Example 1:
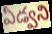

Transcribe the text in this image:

ఏడ్వని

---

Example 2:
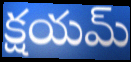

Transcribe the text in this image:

క్షయమ్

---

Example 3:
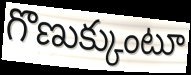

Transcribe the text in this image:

గొణుక్కుంటూ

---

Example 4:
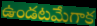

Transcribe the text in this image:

ఉండటమేగాక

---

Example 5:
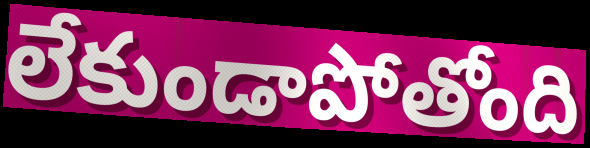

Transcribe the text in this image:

లేకుండాపోతోంది